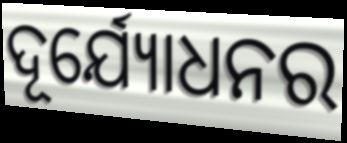
ଦୂର୍ଯ୍ୟୋଧନର